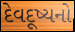
દેવદૂષ્યનો